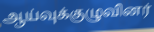
ஆய்வுக்குழுவினர்